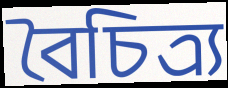
বৈচিত্র্য